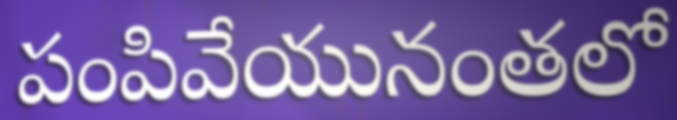
పంపివేయునంతలో